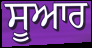
ਸੂਆਰ